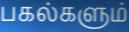
பகல்களும்